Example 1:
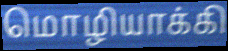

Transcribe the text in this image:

மொழியாக்கி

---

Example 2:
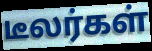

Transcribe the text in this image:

டீலர்கள்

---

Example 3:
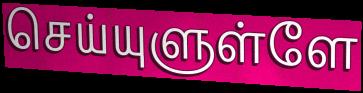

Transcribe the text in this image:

செய்யுளுள்ளே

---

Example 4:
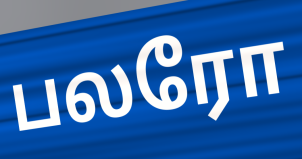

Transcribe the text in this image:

பலரோ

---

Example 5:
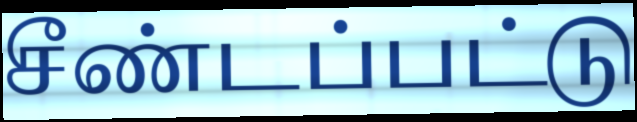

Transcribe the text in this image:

சீண்டப்பட்டு